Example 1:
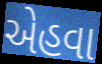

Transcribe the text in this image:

એહવા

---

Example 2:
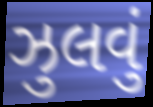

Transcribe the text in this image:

ઝુલવું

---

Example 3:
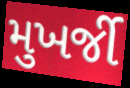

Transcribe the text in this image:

મુખર્જી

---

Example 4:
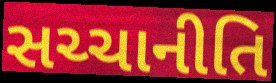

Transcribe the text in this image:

સચ્ચાનીતિ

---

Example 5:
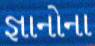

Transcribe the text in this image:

જ્ઞાનોના